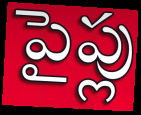
పైప్లు